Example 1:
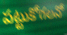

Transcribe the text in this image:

పట్టుకోగలనో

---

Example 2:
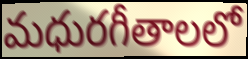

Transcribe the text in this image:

మధురగీతాలలో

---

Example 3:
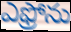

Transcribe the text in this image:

ఎఫ్రోను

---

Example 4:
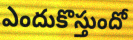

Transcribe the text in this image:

ఎందుకొస్తుందో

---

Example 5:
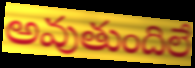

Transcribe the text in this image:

అవుతుందిలే